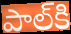
పాల్‌కి